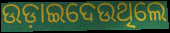
ଉଡ଼ାଇଦେଉଥିଲେ